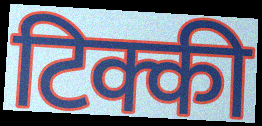
टिक्की